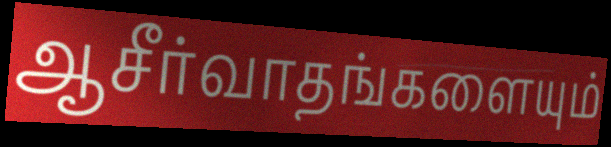
ஆசீர்வாதங்களையும்